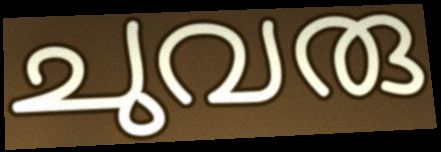
ചുവരു